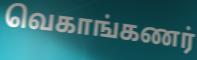
வெகாங்கணர்